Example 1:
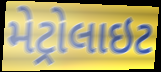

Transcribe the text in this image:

મેટ્રોલાઇટ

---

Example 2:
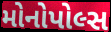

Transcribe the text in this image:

મોનોપોલ્સ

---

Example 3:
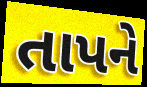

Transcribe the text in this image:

તાપને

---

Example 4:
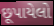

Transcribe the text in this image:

છૂપાયેલો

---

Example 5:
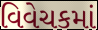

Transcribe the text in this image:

વિવેચકમાં